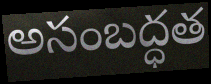
అసంబద్ధత